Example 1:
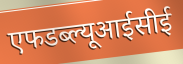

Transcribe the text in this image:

एफडब्ल्यूआईसीई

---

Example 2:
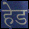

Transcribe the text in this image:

हेड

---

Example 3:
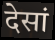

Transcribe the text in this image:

देसां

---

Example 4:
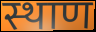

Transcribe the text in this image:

स्थाण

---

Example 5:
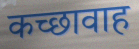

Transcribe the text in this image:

कच्छावाह